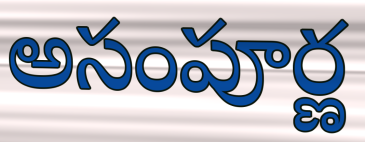
అసంపూర్ణ